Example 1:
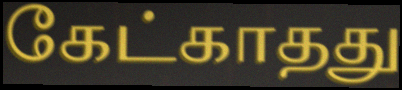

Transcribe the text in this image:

கேட்காதது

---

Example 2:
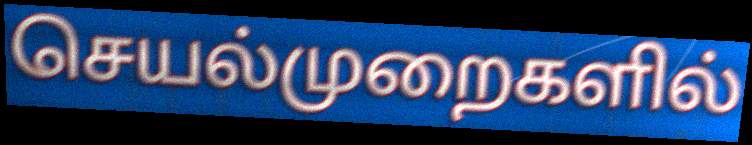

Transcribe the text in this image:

செயல்முறைகளில்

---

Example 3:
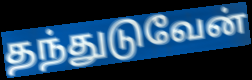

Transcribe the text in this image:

தந்துடுவேன்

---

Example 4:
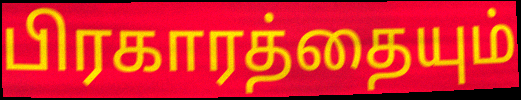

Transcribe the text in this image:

பிரகாரத்தையும்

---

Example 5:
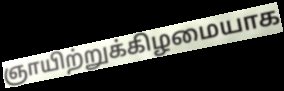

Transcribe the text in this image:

ஞாயிற்றுக்கிழமையாக